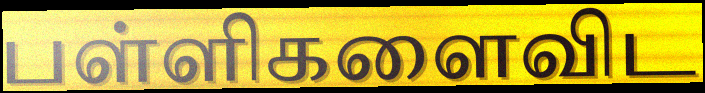
பள்ளிகளைவிட